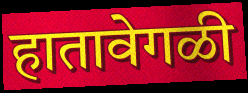
हातावेगळी